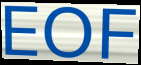
EOF